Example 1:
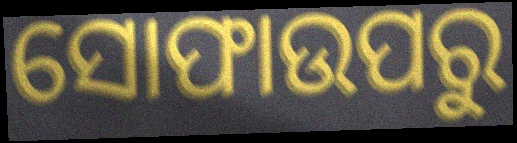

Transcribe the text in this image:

ସୋଫାଉପରୁ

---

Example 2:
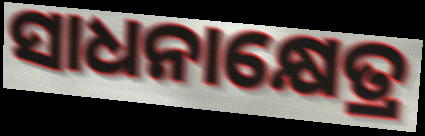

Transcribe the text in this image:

ସାଧନାକ୍ଷେତ୍ର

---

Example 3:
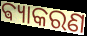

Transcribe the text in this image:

ଵ୍ଯାକରଣ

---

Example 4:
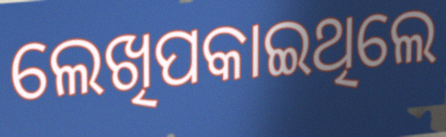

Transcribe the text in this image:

ଲେଖିପକାଇଥିଲେ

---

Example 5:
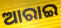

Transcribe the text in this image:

ଆରାଇ